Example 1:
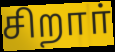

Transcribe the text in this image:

சிறார்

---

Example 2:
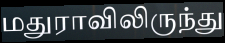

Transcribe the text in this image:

மதுராவிலிருந்து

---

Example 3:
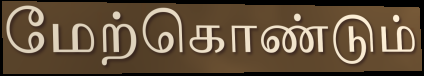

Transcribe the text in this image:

மேற்கொண்டும்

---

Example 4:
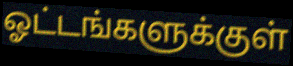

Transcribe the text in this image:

ஓட்டங்களுக்குள்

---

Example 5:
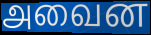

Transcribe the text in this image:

அவைன